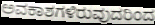
ಅವಕಾಶಗಳಿರುವುದರಿಂದ